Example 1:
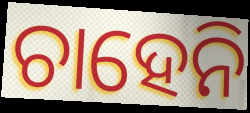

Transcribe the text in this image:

ଚାହେନି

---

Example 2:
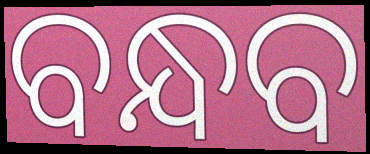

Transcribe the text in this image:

ବନ୍ଧବ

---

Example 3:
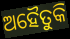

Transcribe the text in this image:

ଅହୈତୁକି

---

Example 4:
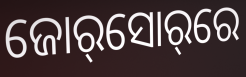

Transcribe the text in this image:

ଜୋର୍‌ସୋର୍‌ରେ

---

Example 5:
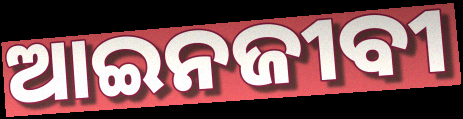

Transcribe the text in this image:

ଆଇନଜୀବୀ